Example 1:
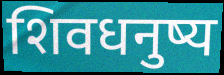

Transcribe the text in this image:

शिवधनुष्य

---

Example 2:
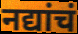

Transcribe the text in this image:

नद्यांचं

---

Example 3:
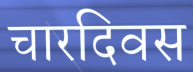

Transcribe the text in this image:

चारदिवस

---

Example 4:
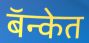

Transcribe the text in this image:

बॅन्केत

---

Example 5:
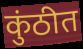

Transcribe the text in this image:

कुंठीत